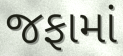
જફામાં